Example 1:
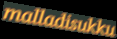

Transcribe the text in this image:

malladisukku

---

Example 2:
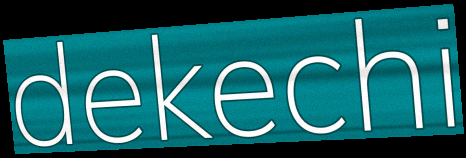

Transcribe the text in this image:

dekechi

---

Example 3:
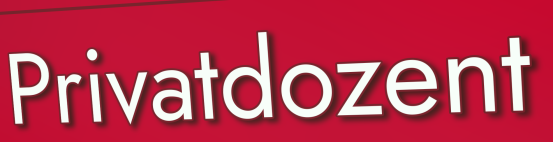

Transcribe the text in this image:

Privatdozent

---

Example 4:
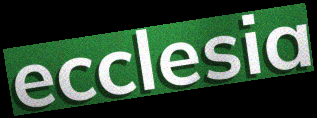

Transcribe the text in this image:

ecclesia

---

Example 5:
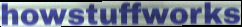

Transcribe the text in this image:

howstuffworks